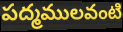
పద్మములవంటి